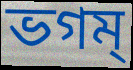
ভগম্